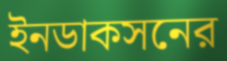
ইনডাকসনের